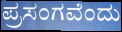
ಪ್ರಸಂಗವೆಂದು